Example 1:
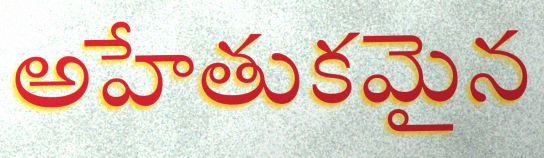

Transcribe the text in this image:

అహేతుకమైన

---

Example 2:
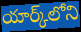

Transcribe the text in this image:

యార్క్‌లోని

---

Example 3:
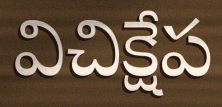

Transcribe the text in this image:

విచిక్షేప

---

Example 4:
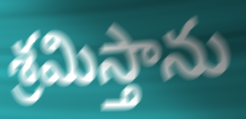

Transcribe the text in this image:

శ్రమిస్తాను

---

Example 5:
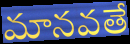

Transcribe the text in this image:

మానవతే